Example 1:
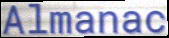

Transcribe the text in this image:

Almanac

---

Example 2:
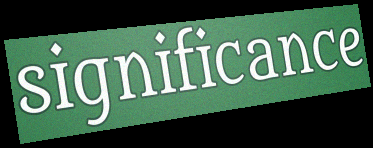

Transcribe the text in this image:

significance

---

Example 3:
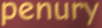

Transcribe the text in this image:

penury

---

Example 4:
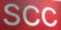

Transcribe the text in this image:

SCC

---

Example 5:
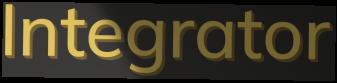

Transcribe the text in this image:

Integrator